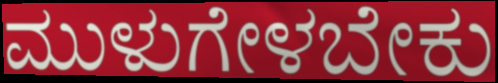
ಮುಳುಗೇಳಬೇಕು